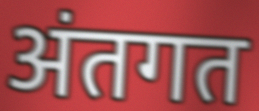
अंतगत